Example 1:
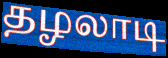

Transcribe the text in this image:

தழலாடி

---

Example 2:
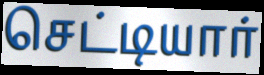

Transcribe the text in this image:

செட்டியார்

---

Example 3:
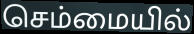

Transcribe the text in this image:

செம்மையில்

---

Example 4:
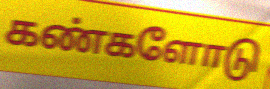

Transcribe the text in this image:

கண்களோடு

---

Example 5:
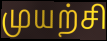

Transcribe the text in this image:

முயற்சி